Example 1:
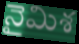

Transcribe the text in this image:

నైమిశ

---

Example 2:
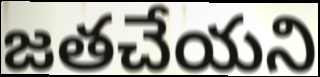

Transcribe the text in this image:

జతచేయని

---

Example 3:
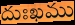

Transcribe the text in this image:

దుఃఖము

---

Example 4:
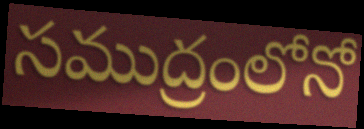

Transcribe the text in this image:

సముద్రంలోనో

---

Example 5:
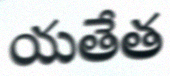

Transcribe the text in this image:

యతేత